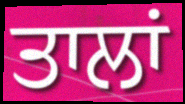
ਤਾਲਾਂ